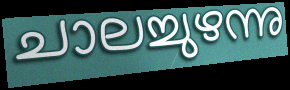
ചാലച്ചുഴന്നു